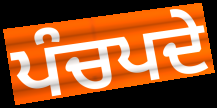
ਪੰਚਪਦੇ